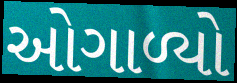
ઓગાળ્યો